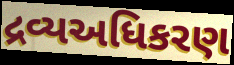
દ્રવ્યઅધિકરણ